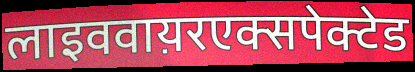
लाइववाय़रएक्सपेक्टेड